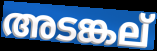
അടങ്കല്